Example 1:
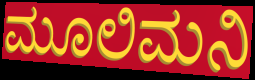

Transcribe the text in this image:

ಮೂಲಿಮನಿ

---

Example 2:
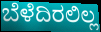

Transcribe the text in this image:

ಬೆಳೆದಿರಲಿಲ್ಲ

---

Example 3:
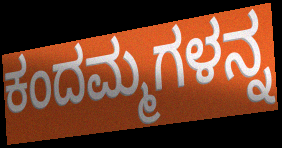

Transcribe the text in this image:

ಕಂದಮ್ಮಗಳನ್ನ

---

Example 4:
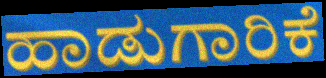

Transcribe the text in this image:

ಹಾಡುಗಾರಿಕೆ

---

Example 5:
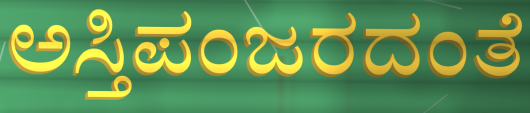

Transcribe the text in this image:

ಅಸ್ತಿಪಂಜರದಂತೆ